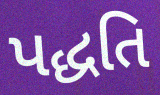
પદ્ધતિ